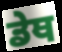
ਡੇਥ